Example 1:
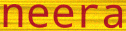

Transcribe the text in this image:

neera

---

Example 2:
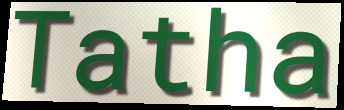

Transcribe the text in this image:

Tatha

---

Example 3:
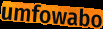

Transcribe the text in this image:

umfowabo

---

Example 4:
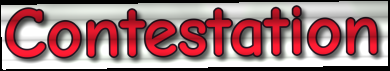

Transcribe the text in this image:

Contestation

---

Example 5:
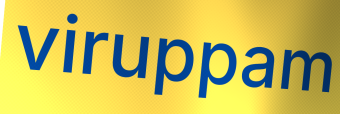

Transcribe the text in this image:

viruppam